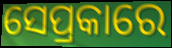
ସେପ୍ରକାରେ